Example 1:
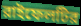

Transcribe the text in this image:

রাইফেলটির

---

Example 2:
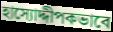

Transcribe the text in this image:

হাস্যোদ্দীপকভাবে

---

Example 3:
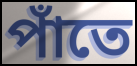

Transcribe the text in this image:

পাঁতে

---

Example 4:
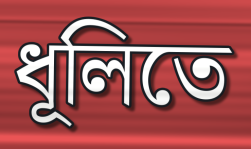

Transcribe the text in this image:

ধূলিতে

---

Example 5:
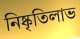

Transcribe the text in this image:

নিষ্কৃতিলাভ